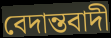
বেদান্তবাদী